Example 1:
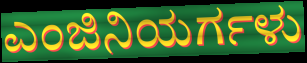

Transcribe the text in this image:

ಎಂಜಿನಿಯರ್ಗಳು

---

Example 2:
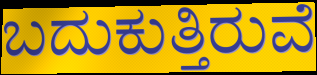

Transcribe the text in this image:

ಬದುಕುತ್ತಿರುವೆ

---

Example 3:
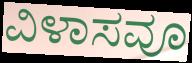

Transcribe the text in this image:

ವಿಳಾಸವೂ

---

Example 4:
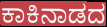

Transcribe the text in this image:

ಕಾಕಿನಾಡದ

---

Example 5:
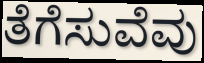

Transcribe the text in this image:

ತೆಗೆಸುವೆವು